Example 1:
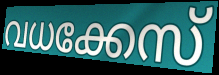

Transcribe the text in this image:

വധക്കേസ്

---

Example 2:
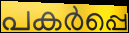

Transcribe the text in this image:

പകർപ്പെ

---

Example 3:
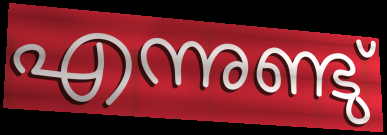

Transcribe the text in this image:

എന്നുണ്ടു്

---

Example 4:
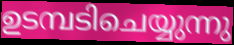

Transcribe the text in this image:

ഉടമ്പടിചെയ്യുന്നു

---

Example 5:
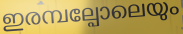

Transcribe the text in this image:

ഇരമ്പല്പോലെയും